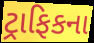
ટ્રાફિકના